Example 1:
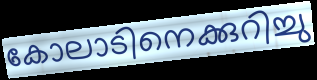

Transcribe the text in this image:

കോലാടിനെക്കുറിച്ചു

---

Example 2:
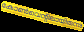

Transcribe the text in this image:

കോൺവെന്റിലായിരുന്നു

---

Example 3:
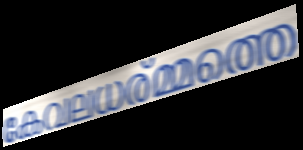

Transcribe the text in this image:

കേവലധര്മ്മത്തെ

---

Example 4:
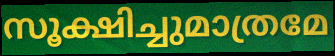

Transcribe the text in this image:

സൂക്ഷിച്ചുമാത്രമേ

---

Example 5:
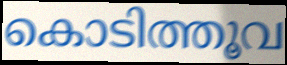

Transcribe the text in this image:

കൊടിത്തൂവ